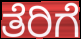
ತೆರಿಗೆ